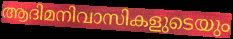
ആദിമനിവാസികളുടെയും